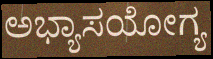
ಅಭ್ಯಾಸಯೋಗ್ಯ